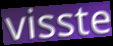
visste